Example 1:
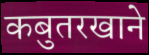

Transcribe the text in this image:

कबुतरखाने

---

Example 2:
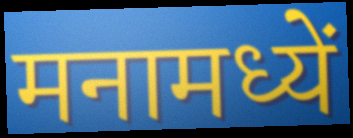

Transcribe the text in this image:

मनामध्यें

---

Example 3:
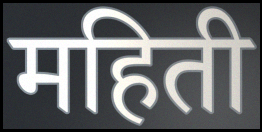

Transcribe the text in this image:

महिती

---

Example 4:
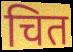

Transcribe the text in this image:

चित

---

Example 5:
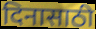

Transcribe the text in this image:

दिनासाठी